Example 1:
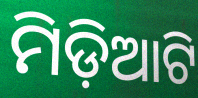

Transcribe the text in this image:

ମିଡ଼ିଆଟି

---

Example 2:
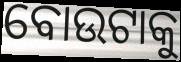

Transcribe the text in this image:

ବୋଉଟାକୁ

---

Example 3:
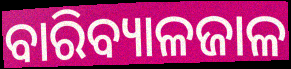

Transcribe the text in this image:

ବାରିବ୍ୟାଳଜାଳ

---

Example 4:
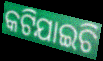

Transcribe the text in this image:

କଟିଯାଇଚି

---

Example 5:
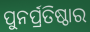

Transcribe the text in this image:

ପୁନର୍ପ୍ରତିଷ୍ଠାର